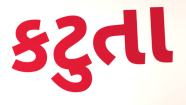
કટુતા